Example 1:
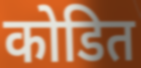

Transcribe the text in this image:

कोडित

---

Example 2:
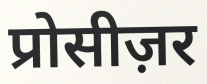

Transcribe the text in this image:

प्रोसीज़र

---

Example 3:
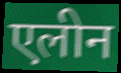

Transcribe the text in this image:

एलीन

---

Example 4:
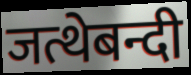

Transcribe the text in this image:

जत्थेबन्दी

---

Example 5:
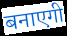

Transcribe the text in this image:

बनाएगी